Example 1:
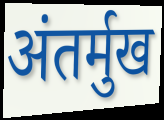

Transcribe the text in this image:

अंतर्मुख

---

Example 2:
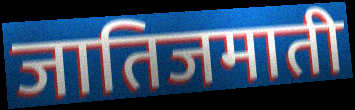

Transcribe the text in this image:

जातिजमाती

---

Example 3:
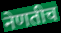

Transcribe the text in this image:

नेणतीच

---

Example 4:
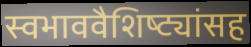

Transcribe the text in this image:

स्वभाववैशिष्ट्यांसह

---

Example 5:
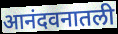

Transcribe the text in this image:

आनंदवनातली